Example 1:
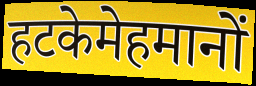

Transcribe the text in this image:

हटकेमेहमानों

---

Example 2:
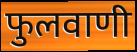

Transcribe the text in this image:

फुलवाणी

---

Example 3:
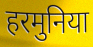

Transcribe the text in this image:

हरमुनिया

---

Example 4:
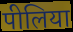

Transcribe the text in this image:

पीलिया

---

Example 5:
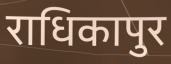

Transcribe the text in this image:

राधिकापुर